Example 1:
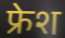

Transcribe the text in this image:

फ्रेश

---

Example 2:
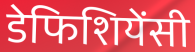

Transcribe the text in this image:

डेफिशियेंसी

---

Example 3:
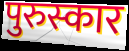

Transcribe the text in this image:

पुरुस्‍कार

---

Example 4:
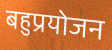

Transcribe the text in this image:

बहुप्रयोजन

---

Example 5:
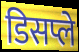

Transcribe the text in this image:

डिसप्ले